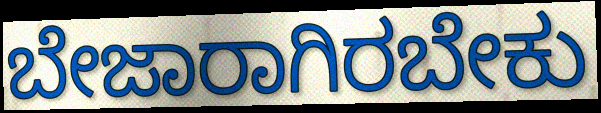
ಬೇಜಾರಾಗಿರಬೇಕು